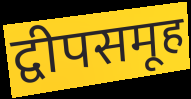
द्वीपसमूह